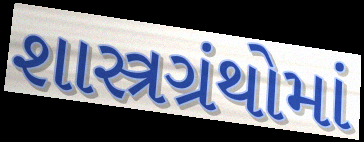
શાસ્ત્રગ્રંથોમાં